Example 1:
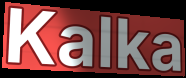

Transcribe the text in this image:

Kalka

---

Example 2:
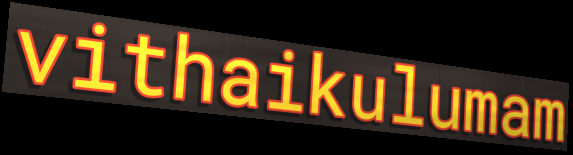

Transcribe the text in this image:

vithaikulumam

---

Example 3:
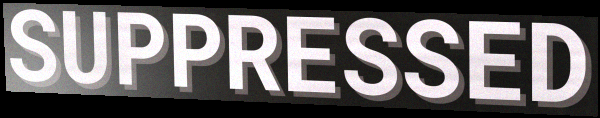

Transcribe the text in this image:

SUPPRESSED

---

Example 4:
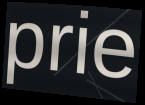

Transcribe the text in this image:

prie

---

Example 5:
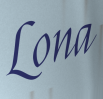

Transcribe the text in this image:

Lona